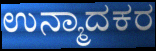
ಉನ್ಮಾದಕರ